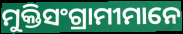
ମୁକ୍ତିସଂଗ୍ରାମୀମାନେ